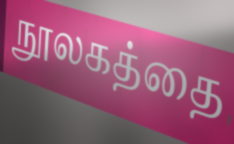
நூலகத்தை